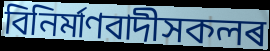
বিনিৰ্মাণবাদীসকলৰ